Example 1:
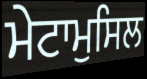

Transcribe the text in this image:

ਮੇਟਾਮੁਸਿਲ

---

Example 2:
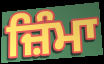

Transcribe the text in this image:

ਜ਼ਿੰਮਾ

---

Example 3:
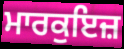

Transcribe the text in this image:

ਮਾਰਕੁਇਜ਼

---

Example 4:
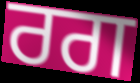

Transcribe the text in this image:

ਰਗ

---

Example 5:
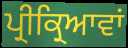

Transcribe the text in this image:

ਪ੍ਰੀਕ੍ਰਿਆਵਾਂ